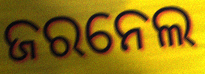
ଜରନେଲ